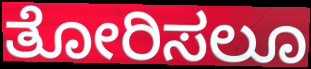
ತೋರಿಸಲೂ